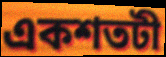
একশতটী